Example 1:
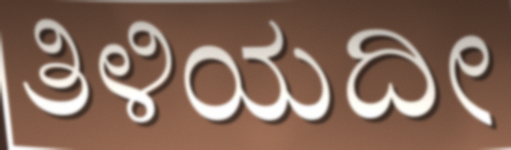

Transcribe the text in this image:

ತಿಳಿಯದೀ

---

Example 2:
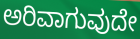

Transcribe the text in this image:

ಅರಿವಾಗುವುದೇ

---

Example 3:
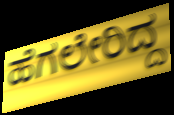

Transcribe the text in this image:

ಹೆಗಲೇರಿದ್ದ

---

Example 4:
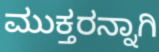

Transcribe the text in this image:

ಮುಕ್ತರನ್ನಾಗಿ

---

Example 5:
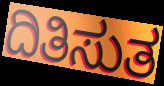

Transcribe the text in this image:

ದಿತಿಸುತ